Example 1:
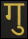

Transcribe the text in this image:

गु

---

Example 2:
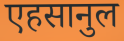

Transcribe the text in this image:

एहसानुल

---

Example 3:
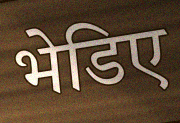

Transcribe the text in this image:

भेडिए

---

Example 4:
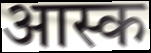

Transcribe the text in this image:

आस्क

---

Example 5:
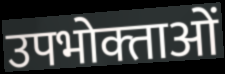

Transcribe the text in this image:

उपभोक्‍ताओं